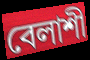
বেলাশী